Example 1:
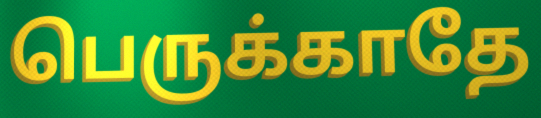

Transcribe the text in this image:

பெருக்காதே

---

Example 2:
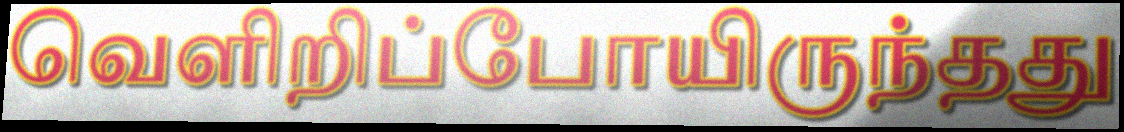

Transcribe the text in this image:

வெளிறிப்போயிருந்தது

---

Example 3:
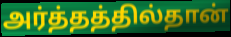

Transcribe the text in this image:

அர்த்தத்தில்தான்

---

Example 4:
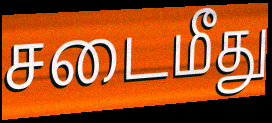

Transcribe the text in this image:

சடைமீது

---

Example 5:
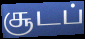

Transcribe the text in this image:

சூடப்